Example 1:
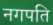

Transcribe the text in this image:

नगपति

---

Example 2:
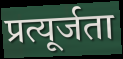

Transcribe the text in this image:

प्रत्यूर्जता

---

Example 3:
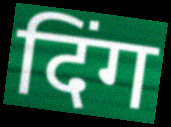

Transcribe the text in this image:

दिंग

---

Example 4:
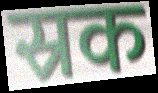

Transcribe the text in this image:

स्रक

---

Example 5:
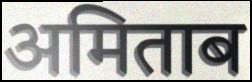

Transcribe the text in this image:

अमिताब